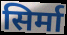
सिर्मा